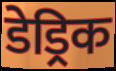
डेड्रिक